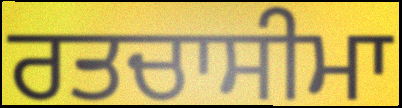
ਰਤਚਾਸੀਮਾ